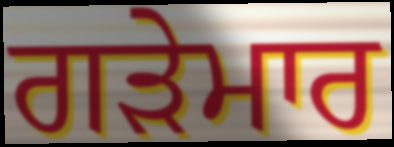
ਗੜੇਮਾਰ